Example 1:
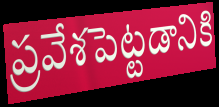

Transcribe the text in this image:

ప్రవేశపెట్టడానికి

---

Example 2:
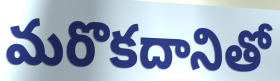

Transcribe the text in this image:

మరొకదానితో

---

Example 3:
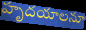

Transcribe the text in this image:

హృదయాలనూ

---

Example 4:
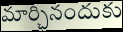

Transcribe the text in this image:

మార్చినందుకు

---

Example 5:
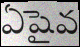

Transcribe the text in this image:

ఏషైవ